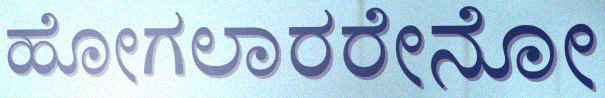
ಹೋಗಲಾರರೇನೋ